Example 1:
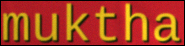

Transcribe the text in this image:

muktha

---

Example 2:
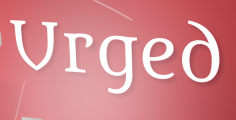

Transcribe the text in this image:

Urged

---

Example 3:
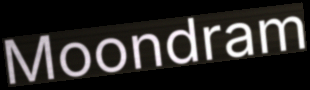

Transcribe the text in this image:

Moondram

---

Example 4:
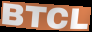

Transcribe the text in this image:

BTCL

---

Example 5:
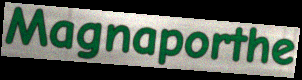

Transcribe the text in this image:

Magnaporthe